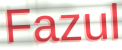
Fazul